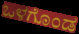
ಒಳಗೊಂಡ